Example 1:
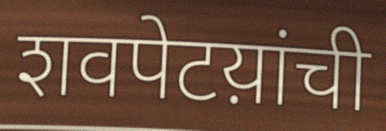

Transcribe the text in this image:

शवपेटय़ांची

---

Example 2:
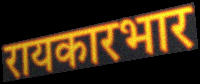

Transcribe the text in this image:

रायकारभार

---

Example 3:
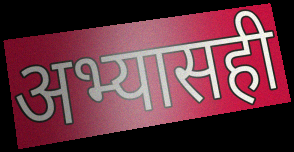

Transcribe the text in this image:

अभ्यासही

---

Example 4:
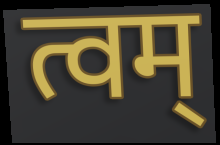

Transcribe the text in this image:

त्वम्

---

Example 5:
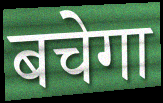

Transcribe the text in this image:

बचेगा